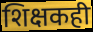
शिक्षकही